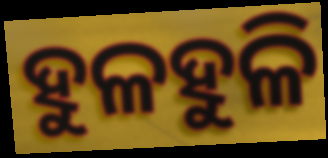
ହୁଳହୁଳି